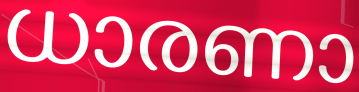
ധാരണാ